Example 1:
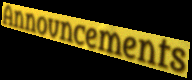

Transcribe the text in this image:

Announcements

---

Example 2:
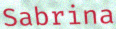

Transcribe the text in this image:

Sabrina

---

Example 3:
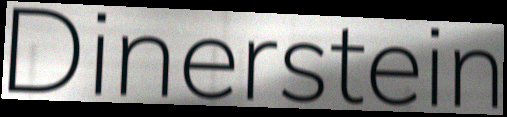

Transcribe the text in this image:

Dinerstein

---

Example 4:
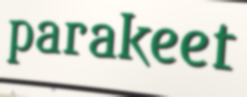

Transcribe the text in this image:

parakeet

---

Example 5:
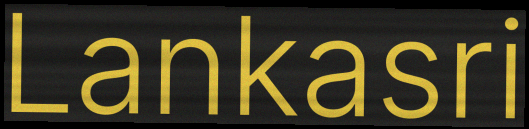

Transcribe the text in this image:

Lankasri